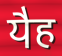
यैह